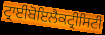
ਟ੍ਰਾਈਬੋਇਲੈਕਟ੍ਰੀਸਿਟੀ